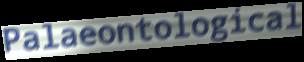
Palaeontological